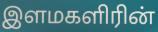
இளமகளிரின்